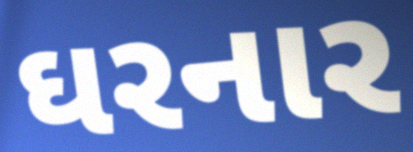
ઘરનાર